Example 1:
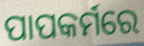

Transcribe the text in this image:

ପାପକର୍ମରେ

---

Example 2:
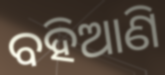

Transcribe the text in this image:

ବହିଆଣି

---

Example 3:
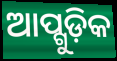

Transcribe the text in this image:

ଆପ୍ଗୁଡ଼ିକ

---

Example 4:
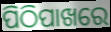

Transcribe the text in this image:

ପିଠିପାଖରେ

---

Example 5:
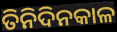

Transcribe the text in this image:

ତିନିଦିନକାଳ